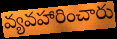
వ్యవహారించారు